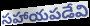
సహాయపడేవి